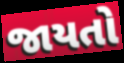
જાયતો